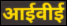
आईवीई